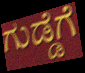
ಗುಡ್ಡೆಗೆ